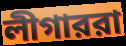
লীগাররা